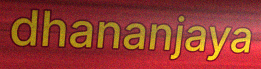
dhananjaya